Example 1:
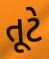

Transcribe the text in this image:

તૂટે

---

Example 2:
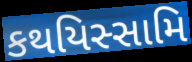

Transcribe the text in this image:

કથયિસ્સામિ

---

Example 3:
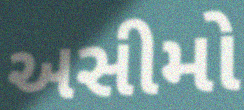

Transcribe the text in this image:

અસીમો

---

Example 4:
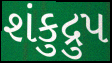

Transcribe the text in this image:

શંકુદ્રુપ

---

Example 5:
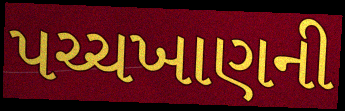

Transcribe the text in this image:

પચ્ચખાણની